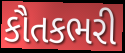
કૌતકભરી